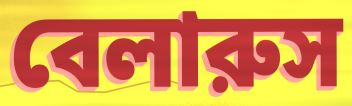
বেলারুস